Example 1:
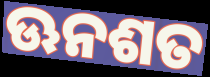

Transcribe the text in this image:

ଊନଶତ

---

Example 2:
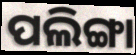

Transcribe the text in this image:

ପଲିଙ୍ଗା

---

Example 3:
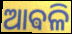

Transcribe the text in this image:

ଆଵଳି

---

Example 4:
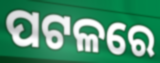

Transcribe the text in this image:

ପଟଳରେ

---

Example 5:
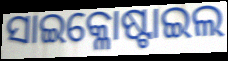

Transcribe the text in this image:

ସାଇକ୍ଳୋଷ୍ଟାଇଲ